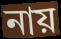
নায়